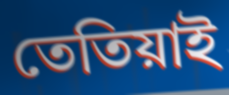
তেতিয়াই